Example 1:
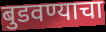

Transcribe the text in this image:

बुडवण्याचा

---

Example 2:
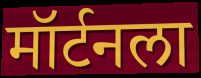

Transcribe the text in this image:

मॉर्टनला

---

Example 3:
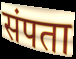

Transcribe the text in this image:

संपता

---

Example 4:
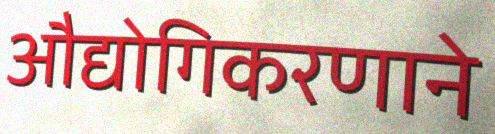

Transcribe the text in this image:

औद्योगिकरणाने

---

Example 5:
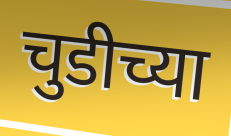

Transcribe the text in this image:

चुडीच्या